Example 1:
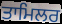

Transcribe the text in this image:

ਤਾਮਿਲਰ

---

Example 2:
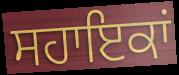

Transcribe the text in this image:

ਸਹਾਇਕਾਂ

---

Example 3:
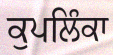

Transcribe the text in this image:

ਕੁਪਲਿੰਕਾ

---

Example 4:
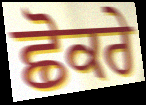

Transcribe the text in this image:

ਛੋਕਰੇ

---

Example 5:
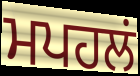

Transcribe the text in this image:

ਮਪਹਲਂ